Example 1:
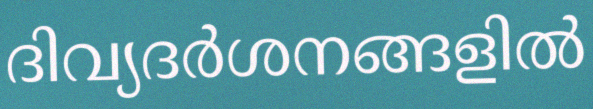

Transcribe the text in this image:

ദിവ്യദർശനങ്ങളിൽ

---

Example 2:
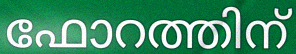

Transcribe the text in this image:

ഫോറത്തിന്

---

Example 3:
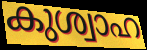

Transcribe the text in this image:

കുശ്വാഹ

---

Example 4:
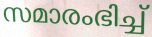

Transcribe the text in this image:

സമാരംഭിച്ച്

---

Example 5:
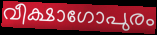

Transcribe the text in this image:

വീക്ഷാഗോപുരം